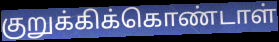
குறுக்கிக்கொண்டாள்